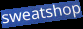
sweatshop